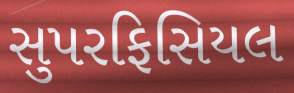
સુપરફિસિયલ